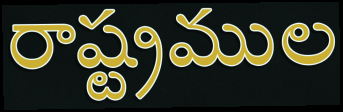
రాష్ట్రముల